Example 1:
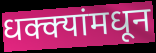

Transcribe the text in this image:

धक्क्यांमधून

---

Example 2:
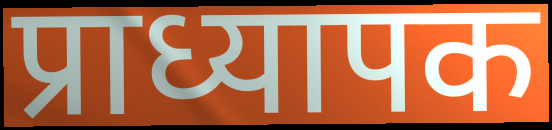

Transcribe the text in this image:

प्राध्यापक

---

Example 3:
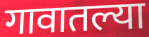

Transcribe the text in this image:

गावातल्या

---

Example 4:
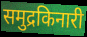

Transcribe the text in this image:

समुद्रकिनारी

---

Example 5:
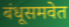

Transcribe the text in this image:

बंधूसमवेत